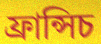
ফ্ৰান্সিচ